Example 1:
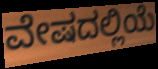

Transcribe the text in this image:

ವೇಷದಲ್ಲಿಯೆ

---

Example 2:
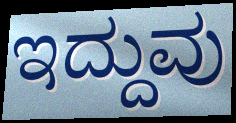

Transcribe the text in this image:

ಇದ್ದುವು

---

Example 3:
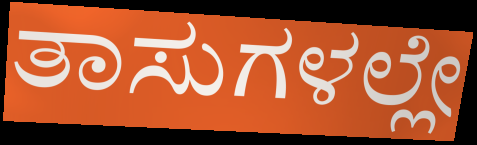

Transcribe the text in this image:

ತಾಸುಗಳಲ್ಲೇ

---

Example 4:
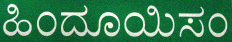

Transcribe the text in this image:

ಹಿಂದೂಯಿಸಂ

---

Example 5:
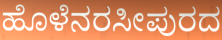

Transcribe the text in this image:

ಹೊಳೆನರಸೀಪುರದ